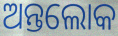
ଅନ୍ତଲୋକ